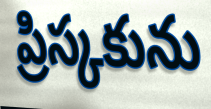
ప్రిస్కకును